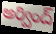
అర్వింద్